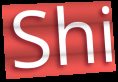
Shi